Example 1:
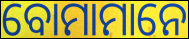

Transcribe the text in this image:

ବୋମାମାନେ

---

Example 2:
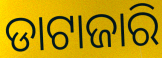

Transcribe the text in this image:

ଡାଟାଜାରି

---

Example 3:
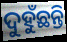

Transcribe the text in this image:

ଦୁହୁଁଛନ୍ତି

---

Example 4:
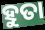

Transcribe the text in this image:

ହୁତା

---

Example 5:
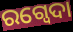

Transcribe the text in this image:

ରଗ୍ବେଦା